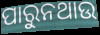
ପାରୁନଥାଉ